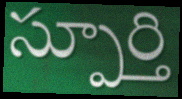
స్పూర్తి